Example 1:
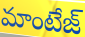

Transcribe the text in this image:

మాంటేజ్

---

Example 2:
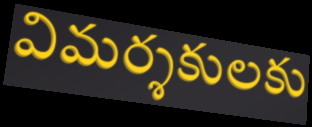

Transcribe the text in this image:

విమర్శకులకు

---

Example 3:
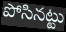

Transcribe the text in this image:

పోసినట్టు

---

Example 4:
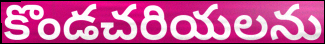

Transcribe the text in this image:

కొండచరియలను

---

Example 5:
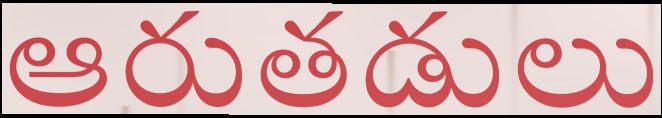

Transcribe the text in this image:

ఆరుతడులు